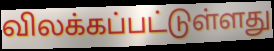
விலக்கப்பட்டுள்ளது